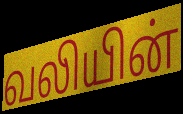
வலியின்